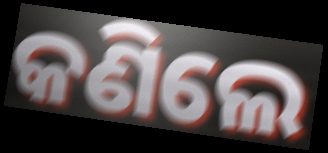
କଣିଲେ